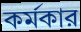
কর্মকার